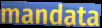
mandata